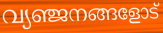
വ്യഞ്ജനങ്ങളോട്